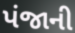
પંજાની